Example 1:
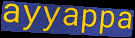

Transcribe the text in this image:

ayyappa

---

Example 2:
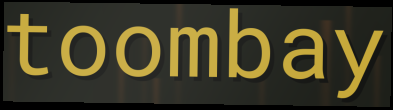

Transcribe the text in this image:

toombay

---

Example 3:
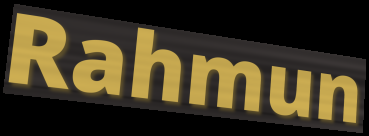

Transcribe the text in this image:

Rahmun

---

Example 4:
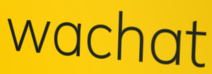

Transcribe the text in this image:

wachat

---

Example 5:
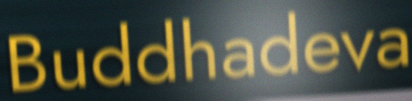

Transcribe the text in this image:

Buddhadeva